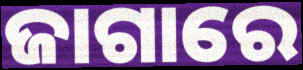
ଜାଗାରେ